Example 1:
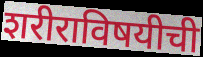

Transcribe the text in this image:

शरीराविषयीची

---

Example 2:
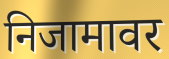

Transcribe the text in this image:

निजामावर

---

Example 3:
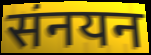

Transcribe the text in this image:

संनयन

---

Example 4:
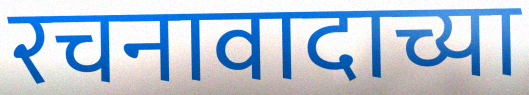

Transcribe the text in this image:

रचनावादाच्या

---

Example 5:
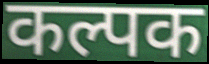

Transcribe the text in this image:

कल्पक